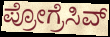
ಪ್ರೋಗ್ರೆಸಿವ್